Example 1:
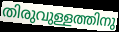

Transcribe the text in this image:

തിരുവുള്ളത്തിനു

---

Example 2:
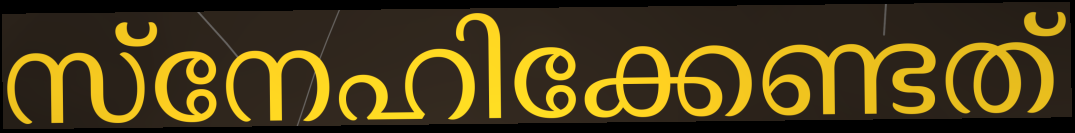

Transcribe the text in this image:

സ്നേഹിക്കേണ്ടത്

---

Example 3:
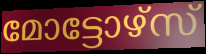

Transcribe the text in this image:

മോട്ടോഴ്സ്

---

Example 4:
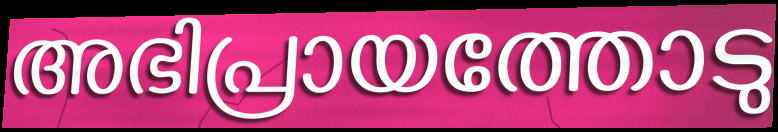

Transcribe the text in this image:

അഭിപ്രായത്തോടു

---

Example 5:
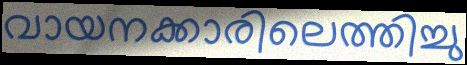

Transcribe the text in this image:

വായനക്കാരിലെത്തിച്ചു